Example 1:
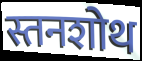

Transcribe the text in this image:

स्तनशोथ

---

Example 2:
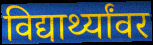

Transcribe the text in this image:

विद्यार्थ्यांवर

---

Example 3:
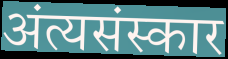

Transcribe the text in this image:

अंत्यसंस्कार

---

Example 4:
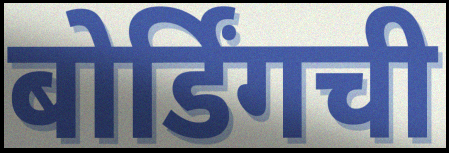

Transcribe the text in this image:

बोर्डिंगची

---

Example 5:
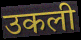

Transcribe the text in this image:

उकली